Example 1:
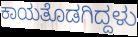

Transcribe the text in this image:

ಕಾಯತೊಡಗಿದ್ದಳು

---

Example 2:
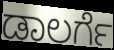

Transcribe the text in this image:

ಡಾಲರ್ಗೆ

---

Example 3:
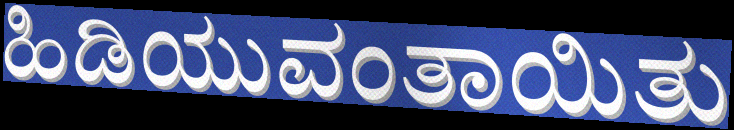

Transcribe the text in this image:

ಹಿಡಿಯುವಂತಾಯಿತು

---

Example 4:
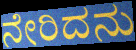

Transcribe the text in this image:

ನೇರಿದನು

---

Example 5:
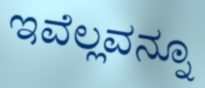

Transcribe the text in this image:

ಇವೆಲ್ಲವನ್ನೂ